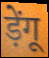
ड़ेंगू